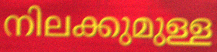
നിലക്കുമുള്ള